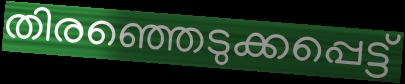
തിരഞ്ഞെടുക്കപ്പെട്ട്